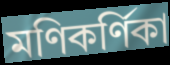
মণিকর্ণিকা